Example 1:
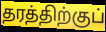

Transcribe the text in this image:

தரத்திற்குப்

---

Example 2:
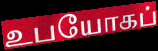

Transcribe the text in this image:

உபயோகப்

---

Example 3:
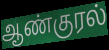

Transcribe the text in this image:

ஆண்குரல்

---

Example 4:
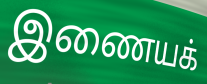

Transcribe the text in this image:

இணையக்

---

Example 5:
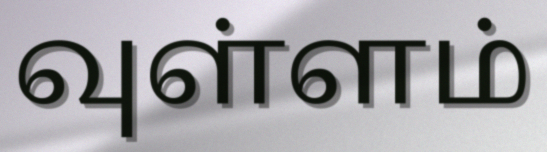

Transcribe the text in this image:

வுள்ளம்